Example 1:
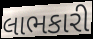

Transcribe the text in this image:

લાભકારી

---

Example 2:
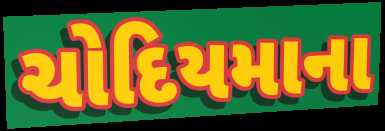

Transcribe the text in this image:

ચોદિયમાના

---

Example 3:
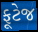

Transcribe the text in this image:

ફૂટેજ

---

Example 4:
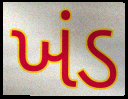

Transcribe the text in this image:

ખંડ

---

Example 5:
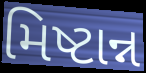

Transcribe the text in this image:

મિષ્ટાન્ન